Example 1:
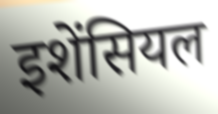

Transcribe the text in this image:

इशेंसियल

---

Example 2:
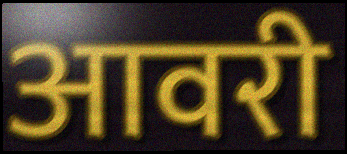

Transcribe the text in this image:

आवरी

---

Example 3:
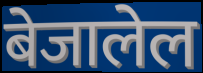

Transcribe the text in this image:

बेजालेल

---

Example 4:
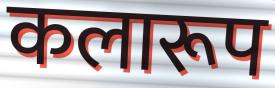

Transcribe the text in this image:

कलारूप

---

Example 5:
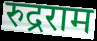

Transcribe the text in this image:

रुद्रराम